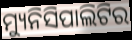
ମ୍ୟୁନିସିପାଲିଟିର